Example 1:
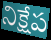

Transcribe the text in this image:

నిక్షేప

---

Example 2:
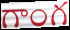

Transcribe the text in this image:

గాంగ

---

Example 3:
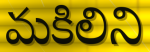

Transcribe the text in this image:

మకిలిని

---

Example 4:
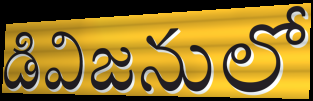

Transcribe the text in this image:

డివిజనులో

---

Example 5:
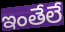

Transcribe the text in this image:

ఇంతేలే